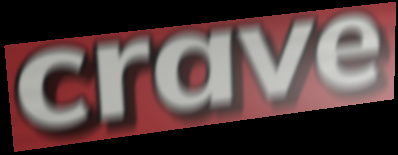
crave